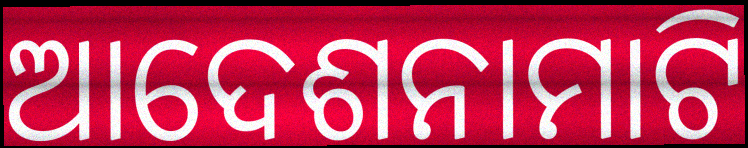
ଆଦେଶନାମାଟି